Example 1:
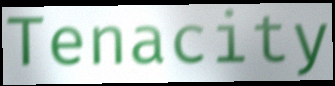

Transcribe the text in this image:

Tenacity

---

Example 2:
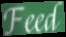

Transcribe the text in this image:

Feed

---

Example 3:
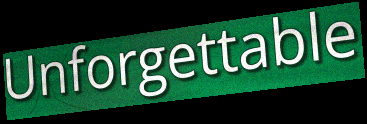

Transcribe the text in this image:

Unforgettable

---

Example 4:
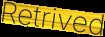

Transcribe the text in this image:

Retrived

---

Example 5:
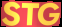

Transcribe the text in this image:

STG